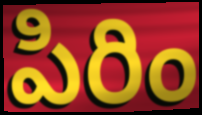
పిరిం